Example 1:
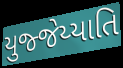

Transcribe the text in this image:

યુજ્જેય્યાતિ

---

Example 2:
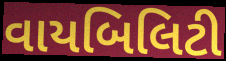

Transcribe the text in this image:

વાયબિલિટી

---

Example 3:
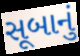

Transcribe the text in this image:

સૂબાનું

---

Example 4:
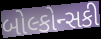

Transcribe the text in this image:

બોલ્કોન્સકી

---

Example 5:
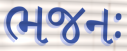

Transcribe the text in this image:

ભજનઃ